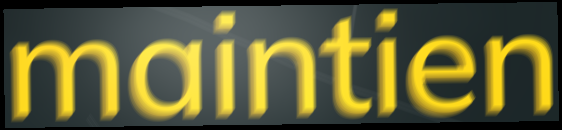
maintien